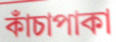
কাঁচাপাকা